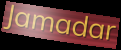
Jamadar